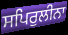
ਸਪਿਰੁਲੀਨਾ